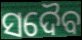
ସଦୈବ